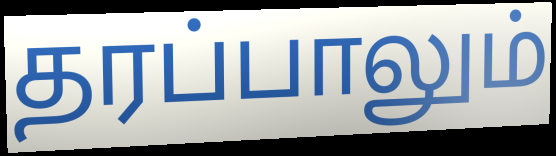
தரப்பாலும்